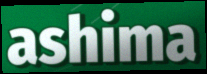
ashima